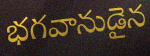
భగవానుడైన